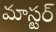
మాస్టర్